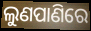
ଲୁଣପାଣିରେ